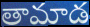
తామాడ